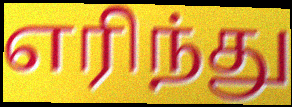
எரிந்து